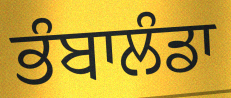
ਭੰਬਾਲੰਡਾ